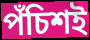
পঁচিশই